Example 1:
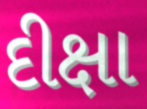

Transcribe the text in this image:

દીક્ષા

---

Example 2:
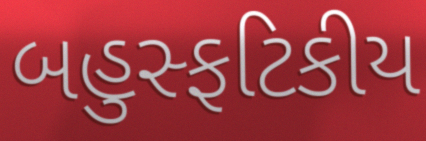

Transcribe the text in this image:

બહુસ્ફટિકીય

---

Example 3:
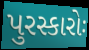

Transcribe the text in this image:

પુરસ્કારોઃ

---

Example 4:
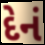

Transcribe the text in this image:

દેનં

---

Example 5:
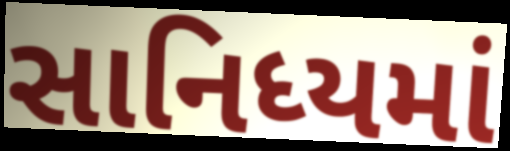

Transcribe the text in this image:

સાનિધ્યમાં